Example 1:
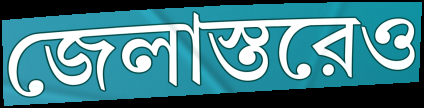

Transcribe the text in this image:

জেলাস্তরেও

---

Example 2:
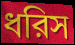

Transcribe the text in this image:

ধরিস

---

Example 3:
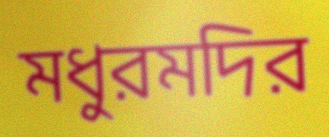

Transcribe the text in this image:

মধুরমদির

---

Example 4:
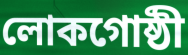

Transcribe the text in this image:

লোকগোষ্ঠী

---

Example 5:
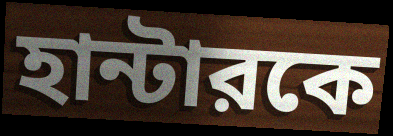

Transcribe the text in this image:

হান্টারকে